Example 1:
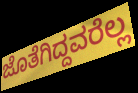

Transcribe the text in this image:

ಜೊತೆಗಿದ್ದವರೆಲ್ಲ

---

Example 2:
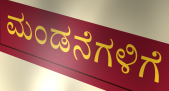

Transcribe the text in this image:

ಮಂಡನೆಗಳಿಗೆ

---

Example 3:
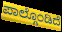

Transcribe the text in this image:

ಪಾಲ್ಗೊಂಡಿದೆ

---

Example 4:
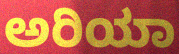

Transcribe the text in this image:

ಅರಿಯಾ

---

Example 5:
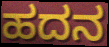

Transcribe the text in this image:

ಹದನ